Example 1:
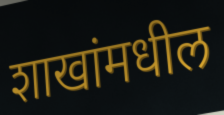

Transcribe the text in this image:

शाखांमधील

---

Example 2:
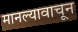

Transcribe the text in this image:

मानल्यावाचून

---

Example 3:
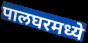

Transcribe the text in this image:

पालघरमध्ये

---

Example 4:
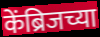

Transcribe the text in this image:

केंब्रिजच्या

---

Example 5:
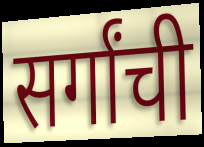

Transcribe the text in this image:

सर्गांची